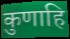
कुणाहि